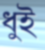
ধুই